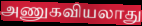
அணுகவியலாது